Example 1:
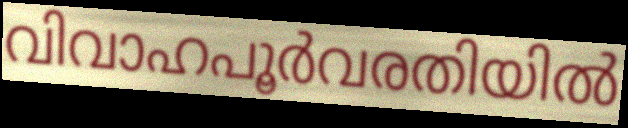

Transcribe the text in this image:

വിവാഹപൂർവരതിയിൽ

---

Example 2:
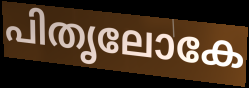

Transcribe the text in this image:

പിതൃലോകേ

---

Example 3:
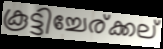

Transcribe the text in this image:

കൂട്ടിച്ചേര്ക്കല്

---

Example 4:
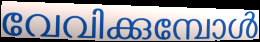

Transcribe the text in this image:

വേവിക്കുമ്പോൾ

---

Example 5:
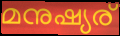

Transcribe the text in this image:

മനുഷ്യര്